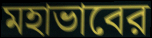
মহাভাবের